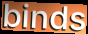
binds